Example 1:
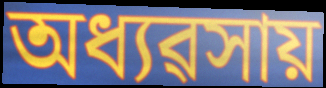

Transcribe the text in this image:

অধ্যৱসায়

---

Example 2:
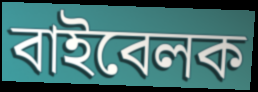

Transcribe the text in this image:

বাইবেলক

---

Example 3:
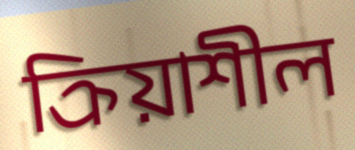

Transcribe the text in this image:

ক্ৰিয়াশীল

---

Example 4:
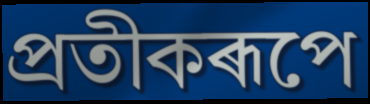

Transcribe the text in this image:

প্ৰতীকৰূপে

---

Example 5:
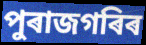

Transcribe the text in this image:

পুৰাজগৰিৰ